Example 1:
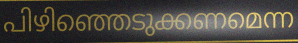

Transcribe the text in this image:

പിഴിഞ്ഞെടുക്കണമെന്ന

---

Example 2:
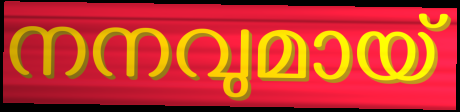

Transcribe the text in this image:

നനവുമായ്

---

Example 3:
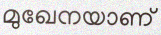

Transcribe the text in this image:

മുഖേനയാണ്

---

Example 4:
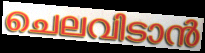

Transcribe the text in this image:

ചെലവിടാൻ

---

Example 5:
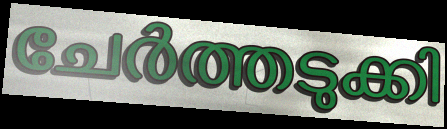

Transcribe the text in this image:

ചേർത്തടുക്കി